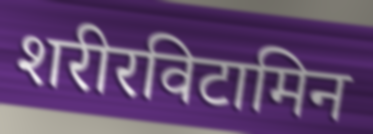
शरीरविटामिन